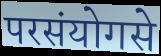
परसंयोगसे